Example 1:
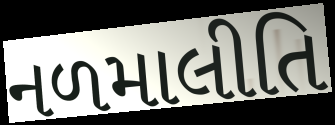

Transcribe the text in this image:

નળમાલીતિ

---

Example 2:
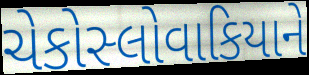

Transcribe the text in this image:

ચેકોસ્લોવાકિયાને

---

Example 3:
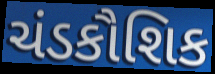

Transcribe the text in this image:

ચંડકૌશિક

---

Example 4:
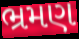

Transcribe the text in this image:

ભ્રમણ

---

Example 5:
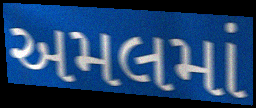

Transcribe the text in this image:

અમલમાં